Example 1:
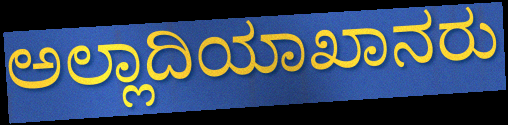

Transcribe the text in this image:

ಅಲ್ಲಾದಿಯಾಖಾನರು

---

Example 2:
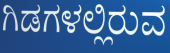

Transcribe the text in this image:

ಗಿಡಗಳಲ್ಲಿರುವ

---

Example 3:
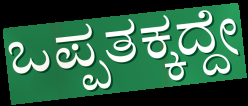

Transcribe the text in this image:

ಒಪ್ಪತಕ್ಕದ್ದೇ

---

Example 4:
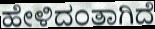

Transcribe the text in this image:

ಹೇಳಿದಂತಾಗಿದೆ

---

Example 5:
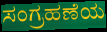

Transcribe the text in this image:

ಸಂಗ್ರಹಣೆಯ